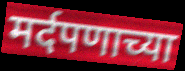
मर्दपणाच्या